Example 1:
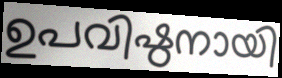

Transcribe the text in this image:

ഉപവിഷ്ഠനായി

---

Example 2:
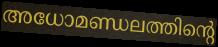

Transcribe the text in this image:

അധോമണ്ഡലത്തിന്റെ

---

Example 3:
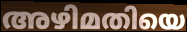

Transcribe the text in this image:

അഴിമതിയെ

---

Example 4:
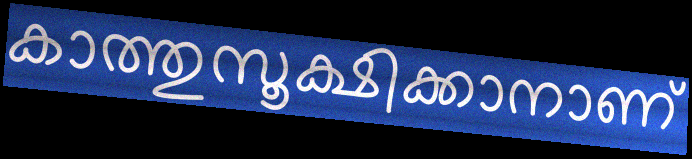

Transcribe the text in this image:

കാത്തുസൂക്ഷിക്കാനാണ്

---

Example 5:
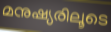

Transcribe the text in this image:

മനുഷ്യരിലൂടെ